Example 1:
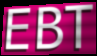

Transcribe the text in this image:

EBT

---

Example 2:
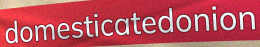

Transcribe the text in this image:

domesticatedonion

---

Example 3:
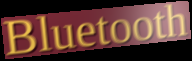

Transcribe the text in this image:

Bluetooth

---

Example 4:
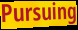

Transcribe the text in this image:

Pursuing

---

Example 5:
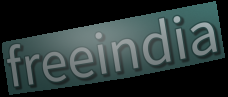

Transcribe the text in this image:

freeindia